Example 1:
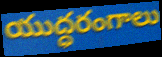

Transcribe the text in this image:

యుద్ధరంగాలు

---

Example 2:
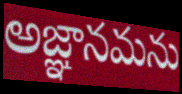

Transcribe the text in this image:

అజ్ఞానమను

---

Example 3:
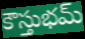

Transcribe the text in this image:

కౌస్తుభమ్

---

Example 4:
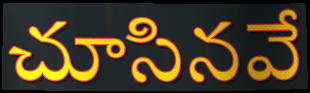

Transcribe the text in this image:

చూసినవే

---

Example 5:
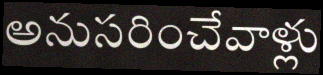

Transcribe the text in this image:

అనుసరించేవాళ్లు